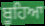
ਬੂਹਿਆ